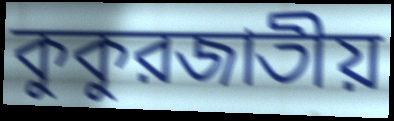
কুকুরজাতীয়